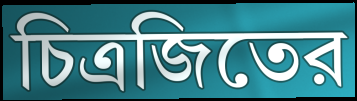
চিত্রজিতের